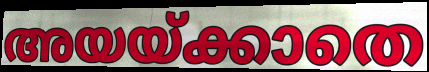
അയയ്ക്കാതെ